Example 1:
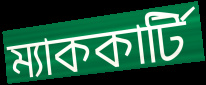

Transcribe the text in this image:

ম্যাককার্টি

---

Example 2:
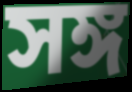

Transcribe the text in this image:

সঙ্গ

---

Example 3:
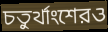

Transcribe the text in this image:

চতুর্থাংশেরও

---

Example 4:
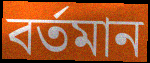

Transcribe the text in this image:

বর্তমান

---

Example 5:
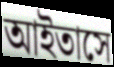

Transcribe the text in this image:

আইতাসে